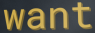
want